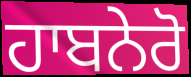
ਹਾਬਨੇਰੋ